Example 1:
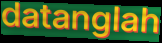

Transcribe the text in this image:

datanglah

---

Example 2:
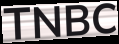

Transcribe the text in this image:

TNBC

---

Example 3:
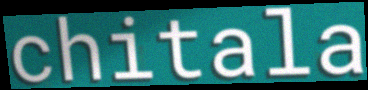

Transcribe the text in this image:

chitala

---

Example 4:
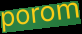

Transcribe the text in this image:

porom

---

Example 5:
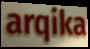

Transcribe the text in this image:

arqika